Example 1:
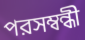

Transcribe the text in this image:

পরসম্বন্ধী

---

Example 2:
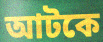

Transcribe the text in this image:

আটকে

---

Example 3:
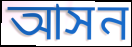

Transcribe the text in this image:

আসন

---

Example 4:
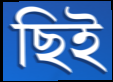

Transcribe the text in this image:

ছিই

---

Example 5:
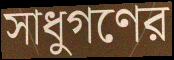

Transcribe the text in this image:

সাধুগণের